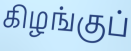
கிழங்குப்